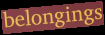
belongings